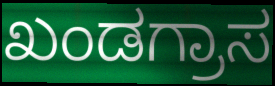
ಖಂಡಗ್ರಾಸ